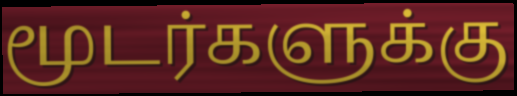
மூடர்களுக்கு